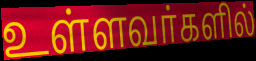
உள்ளவர்களில்